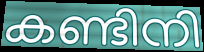
കണ്ടിനി